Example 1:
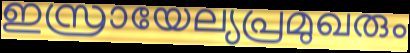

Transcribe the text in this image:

ഇസ്രായേല്യപ്രമുഖരും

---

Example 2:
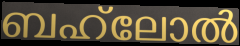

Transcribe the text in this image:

ബഹ്‌ലോൽ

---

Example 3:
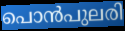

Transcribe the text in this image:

പൊൻപുലരി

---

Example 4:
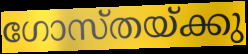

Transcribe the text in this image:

ഗോസ്തയ്ക്കു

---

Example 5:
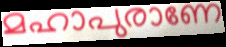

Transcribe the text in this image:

മഹാപുരാണേ